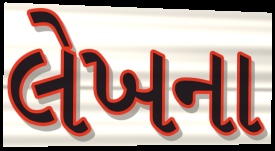
લેખના